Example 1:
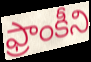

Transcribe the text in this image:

ఫ్రాంకీని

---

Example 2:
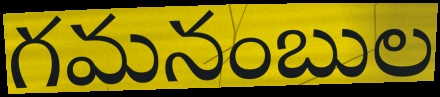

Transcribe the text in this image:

గమనంబుల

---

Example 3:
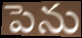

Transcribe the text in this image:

పెను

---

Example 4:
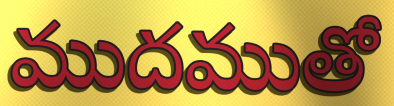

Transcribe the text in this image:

ముదముతో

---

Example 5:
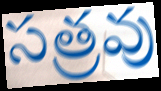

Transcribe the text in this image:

సత్రవు